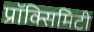
प्रॉक्सिमिटी